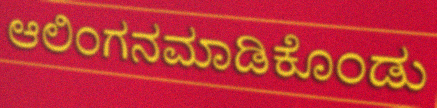
ಆಲಿಂಗನಮಾಡಿಕೊಂಡು